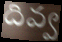
దివ్వ